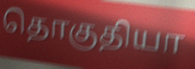
தொகுதியா